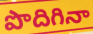
పొదిగినా